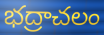
భద్రాచలం